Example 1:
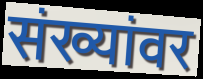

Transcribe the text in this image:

संख्यांवर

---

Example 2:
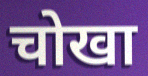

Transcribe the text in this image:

चोखा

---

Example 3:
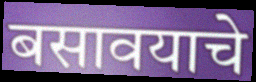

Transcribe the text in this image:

बसावयाचे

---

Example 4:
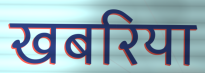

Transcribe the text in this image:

खबरिया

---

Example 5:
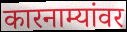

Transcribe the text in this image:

कारनाम्यांवर